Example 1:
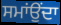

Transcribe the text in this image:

ਸਮਾਂਉਂਦਾ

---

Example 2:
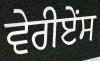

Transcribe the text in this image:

ਵੇਰੀਏਂਸ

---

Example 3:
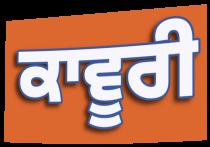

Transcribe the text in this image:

ਕਾਵੂਰੀ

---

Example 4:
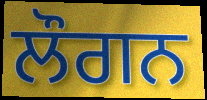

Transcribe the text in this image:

ਲੌਗਨ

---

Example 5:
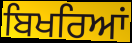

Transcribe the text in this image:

ਬਿਖਰਿਆਂ